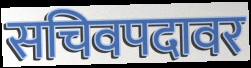
सचिवपदावर